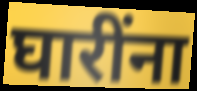
घारींना